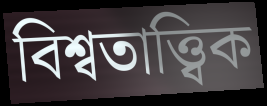
বিশ্বতাত্ত্বিক